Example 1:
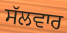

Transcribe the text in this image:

ਸੱਲਵਾਰ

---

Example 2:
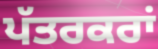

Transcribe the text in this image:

ਪੱਤਰਕਰਾਂ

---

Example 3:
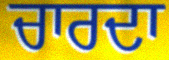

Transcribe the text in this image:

ਚਾਰਦਾ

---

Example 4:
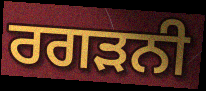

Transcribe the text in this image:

ਰਗੜਨੀ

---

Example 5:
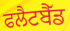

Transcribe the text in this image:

ਫਲੈਟਬੈੱਡ